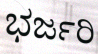
ಭರ್ಜರಿ